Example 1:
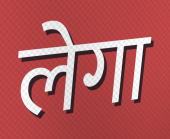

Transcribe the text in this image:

लेगा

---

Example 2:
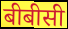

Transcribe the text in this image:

बीबीसी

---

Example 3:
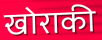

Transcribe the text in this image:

खोराकी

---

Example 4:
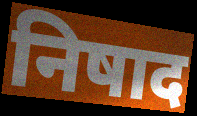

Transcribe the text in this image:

निषाद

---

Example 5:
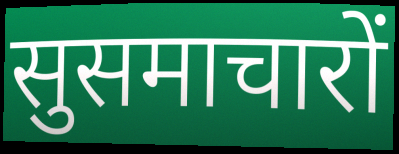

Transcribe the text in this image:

सुसमाचारों